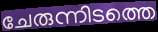
ചേരുന്നിടത്തെ